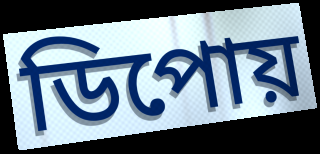
ডিপোয়